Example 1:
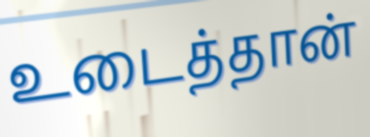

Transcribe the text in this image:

உடைத்தான்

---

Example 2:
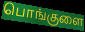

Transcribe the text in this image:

பொங்குளை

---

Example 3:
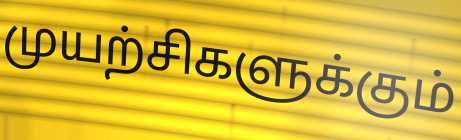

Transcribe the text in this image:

முயற்சிகளுக்கும்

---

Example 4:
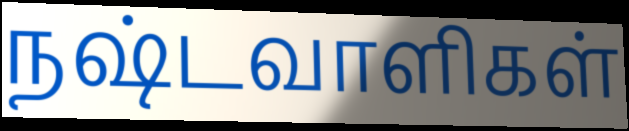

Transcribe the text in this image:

நஷ்டவாளிகள்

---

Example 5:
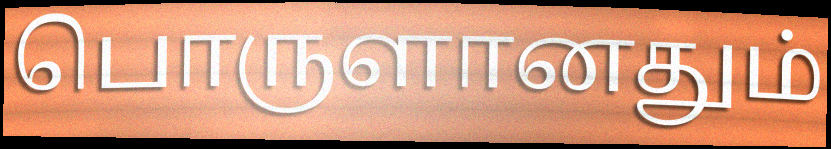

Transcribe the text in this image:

பொருளானதும்